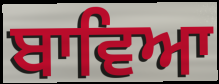
ਬਾਵਿਆ